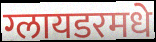
ग्लायडरमधे